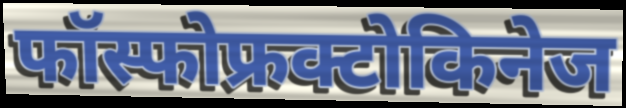
फॉस्फोफ्रक्टोकिनेज